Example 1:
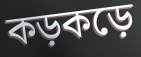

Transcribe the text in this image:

কড়কড়ে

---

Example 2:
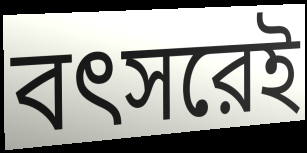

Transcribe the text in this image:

বৎসরেই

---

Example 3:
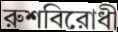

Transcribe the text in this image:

রুশবিরোধী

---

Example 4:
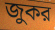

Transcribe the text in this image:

জুকর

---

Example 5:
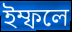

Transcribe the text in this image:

ইম্ফলে